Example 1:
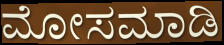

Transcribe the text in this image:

ಮೋಸಮಾಡಿ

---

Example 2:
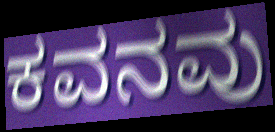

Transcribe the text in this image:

ಕವನವು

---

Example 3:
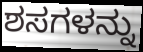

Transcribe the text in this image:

ಶಸಗಳನ್ನು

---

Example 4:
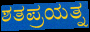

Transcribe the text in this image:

ಶತಪ್ರಯತ್ನ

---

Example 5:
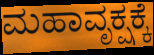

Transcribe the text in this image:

ಮಹಾವೃಕ್ಷಕ್ಕೆ